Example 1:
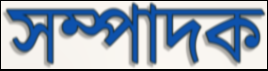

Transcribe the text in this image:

সম্পাদক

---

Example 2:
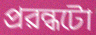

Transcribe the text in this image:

প্ৰৱন্ধটো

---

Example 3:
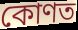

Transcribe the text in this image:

কোণত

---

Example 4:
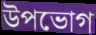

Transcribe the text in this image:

উপভোগ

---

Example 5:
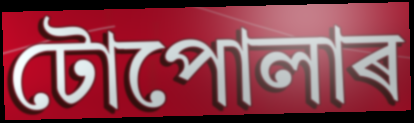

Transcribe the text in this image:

টোপোলাৰ